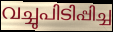
വച്ചുപിടിപ്പിച്ച